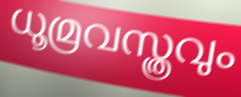
ധൂമ്രവസ്ത്രവും